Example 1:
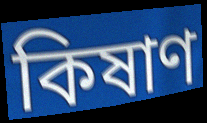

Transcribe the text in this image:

কিষাণ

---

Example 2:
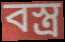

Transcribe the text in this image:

বস্ত্ৰ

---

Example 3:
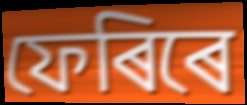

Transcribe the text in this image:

ফেৰিৰে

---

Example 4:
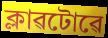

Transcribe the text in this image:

ক্লাৱটোৱে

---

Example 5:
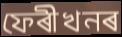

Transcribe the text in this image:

ফেৰীখনৰ